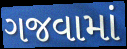
ગજવામાં